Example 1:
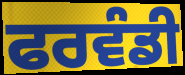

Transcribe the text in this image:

ਫਰਵੰਡੀ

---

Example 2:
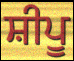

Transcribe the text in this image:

ਸ਼ੀਪੂ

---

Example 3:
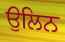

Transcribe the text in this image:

ਉਲਿਨ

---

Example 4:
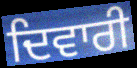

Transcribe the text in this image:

ਦਿਵਾਰੀ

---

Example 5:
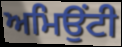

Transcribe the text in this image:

ਅਮਿਉਂਟੀ